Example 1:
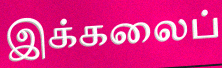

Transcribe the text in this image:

இக்கலைப்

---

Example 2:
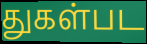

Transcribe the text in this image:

துகள்பட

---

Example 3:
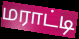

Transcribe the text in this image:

மராட்டி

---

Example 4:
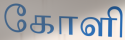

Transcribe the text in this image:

கோளி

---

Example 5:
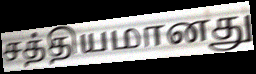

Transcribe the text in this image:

சத்தியமானது